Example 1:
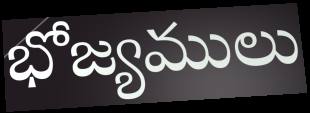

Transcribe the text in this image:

భోజ్యములు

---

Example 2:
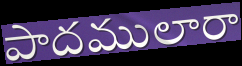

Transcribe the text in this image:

పాదములారా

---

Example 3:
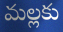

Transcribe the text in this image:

మల్లకు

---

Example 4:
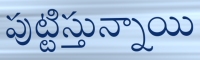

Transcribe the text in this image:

పుట్టిస్తున్నాయి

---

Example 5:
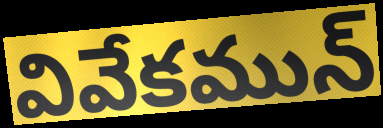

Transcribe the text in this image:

వివేకమున్